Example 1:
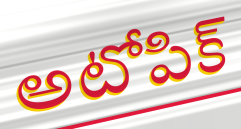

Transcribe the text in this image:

అటోపిక్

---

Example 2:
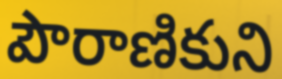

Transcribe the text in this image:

పౌరాణికుని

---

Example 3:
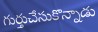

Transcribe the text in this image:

గుర్తుచేసుకొన్నాడు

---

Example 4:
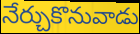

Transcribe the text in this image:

నేర్చుకొనువాడు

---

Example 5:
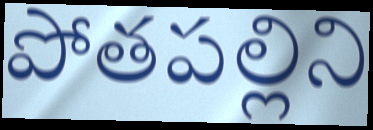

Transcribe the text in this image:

పోతపల్లిని